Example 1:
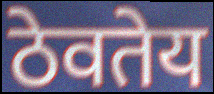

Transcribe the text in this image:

ठेवतेय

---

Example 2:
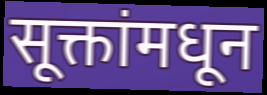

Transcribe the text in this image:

सूक्तांमधून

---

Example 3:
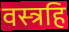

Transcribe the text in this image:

वस्त्रहि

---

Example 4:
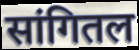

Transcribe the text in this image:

सांगितल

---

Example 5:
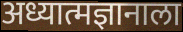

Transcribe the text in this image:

अध्यात्मज्ञानाला